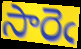
సారెఁ